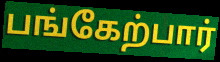
பங்கேற்பார்